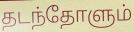
தடந்தோளும்